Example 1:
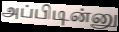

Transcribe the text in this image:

அப்பிடின்னு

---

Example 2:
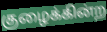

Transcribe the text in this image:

குழைக்கின்ற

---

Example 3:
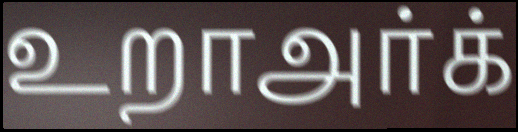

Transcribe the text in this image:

உறாஅர்க்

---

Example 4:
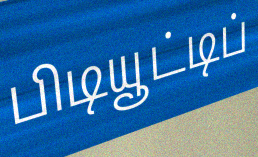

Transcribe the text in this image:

பிடியூட்டிப்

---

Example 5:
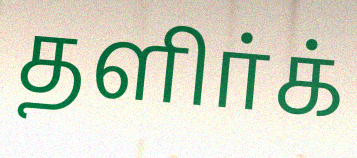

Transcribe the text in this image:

தளிர்க்